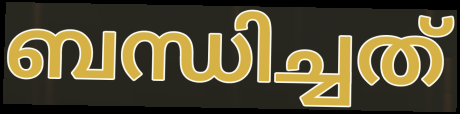
ബന്ധിച്ചത്